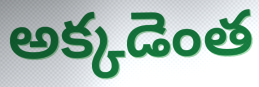
అక్కడెంత